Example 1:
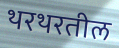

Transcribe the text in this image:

थरथरतील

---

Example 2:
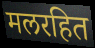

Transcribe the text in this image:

मलरहित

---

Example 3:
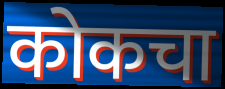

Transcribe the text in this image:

कोकचा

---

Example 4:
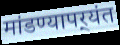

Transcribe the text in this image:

मांडण्यापर्यंत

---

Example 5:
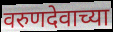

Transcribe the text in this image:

वरुणदेवाच्या